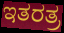
ಇತರತ್ರ